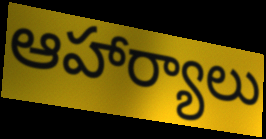
ఆహార్యాలు